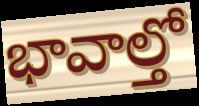
భావాల్తో